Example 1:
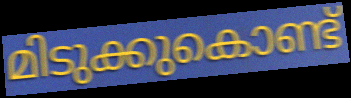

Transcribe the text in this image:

മിടുക്കുകൊണ്ട്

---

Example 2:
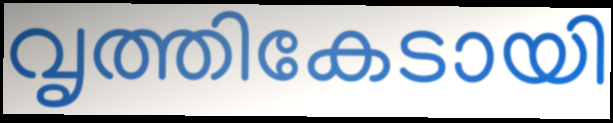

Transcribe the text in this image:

വൃത്തികേടായി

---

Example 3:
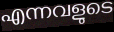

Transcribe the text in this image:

എന്നവളുടെ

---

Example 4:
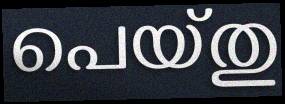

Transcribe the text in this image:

പെയ്തു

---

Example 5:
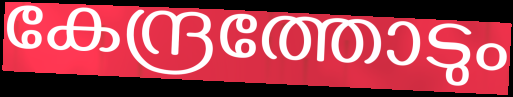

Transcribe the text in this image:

കേന്ദ്രത്തോടും